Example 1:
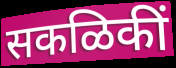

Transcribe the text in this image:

सकळिकीं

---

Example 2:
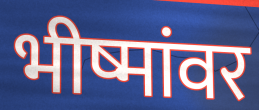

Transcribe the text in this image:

भीष्मांवर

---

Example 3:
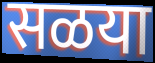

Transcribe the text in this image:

सळया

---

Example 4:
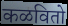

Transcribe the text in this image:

कळवितो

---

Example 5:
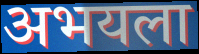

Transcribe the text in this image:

अभयला